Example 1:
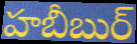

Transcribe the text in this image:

హబీబుర్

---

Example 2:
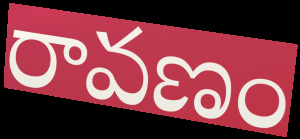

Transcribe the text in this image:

రావణం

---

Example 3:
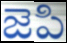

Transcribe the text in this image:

జెపి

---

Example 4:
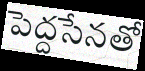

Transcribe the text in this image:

పెద్దసేనతో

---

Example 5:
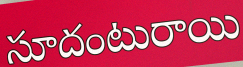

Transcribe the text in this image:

సూదంటురాయి